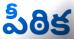
పీఠిక